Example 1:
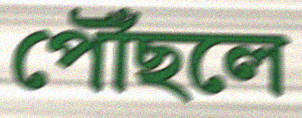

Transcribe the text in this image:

পৌঁছলে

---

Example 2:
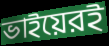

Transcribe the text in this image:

ভাইয়েরই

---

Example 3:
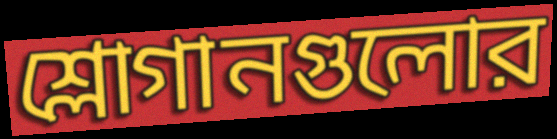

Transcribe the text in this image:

শ্লোগানগুলোর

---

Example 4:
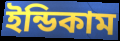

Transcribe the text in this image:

ইন্ডিকাম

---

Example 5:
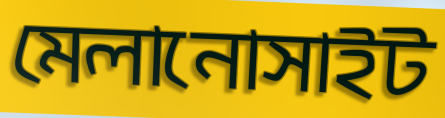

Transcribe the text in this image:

মেলানোসাইট